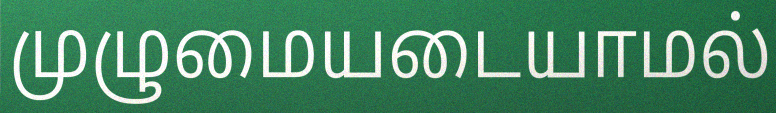
முழுமையடையாமல்